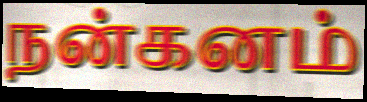
நன்கனம்